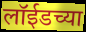
लॉईडच्या